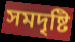
সমদৃষ্টি